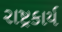
રાષ્ટ્રકાર્ય